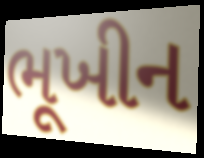
ભૂખીન